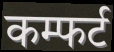
कम्फर्ट